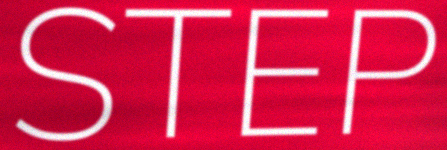
STEP